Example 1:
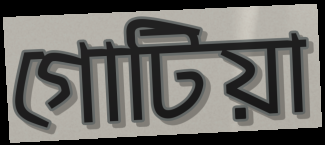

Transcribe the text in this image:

গোটিয়া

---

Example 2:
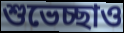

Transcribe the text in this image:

শুভেচ্ছাও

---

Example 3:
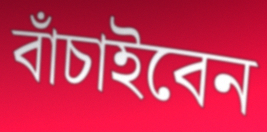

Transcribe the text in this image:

বাঁচাইবেন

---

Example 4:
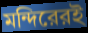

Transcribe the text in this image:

মন্দিরেরই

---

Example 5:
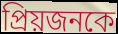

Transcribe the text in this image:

প্রিয়জনকে